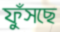
ফুঁসছে